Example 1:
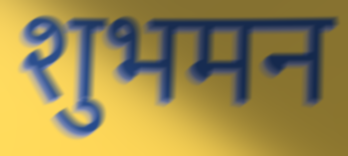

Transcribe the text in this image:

शुभमन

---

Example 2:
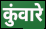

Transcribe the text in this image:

कुंवारे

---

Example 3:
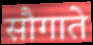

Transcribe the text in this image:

सौगाते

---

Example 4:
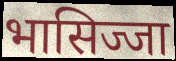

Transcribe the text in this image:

भासिज्जा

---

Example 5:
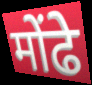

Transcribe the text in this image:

मोंढे